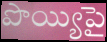
పొయ్యిపై